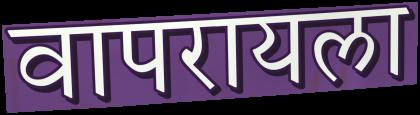
वापरायला